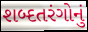
શબ્દતરંગોનું